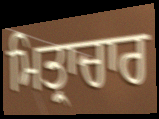
ਮਿਤ੍ਰਾਚਾਰ